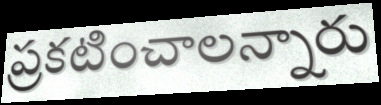
ప్రకటించాలన్నారు